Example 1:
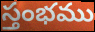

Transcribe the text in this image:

స్తంభము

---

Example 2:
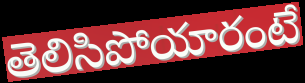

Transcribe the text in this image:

తెలిసిపోయారంటే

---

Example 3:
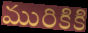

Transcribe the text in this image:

మురికికి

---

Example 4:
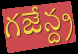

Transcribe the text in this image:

గజేన్ద్ర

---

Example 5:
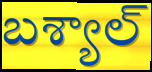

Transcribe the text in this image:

బశ్యాల్